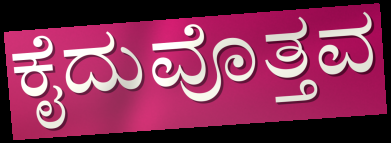
ಕೈದುವೊತ್ತವ